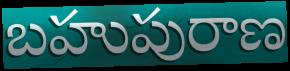
బహుపురాణ